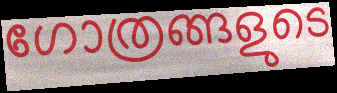
ഗോത്രങ്ങളുടെ